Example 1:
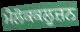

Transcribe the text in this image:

ਮੈਲੋਕਕਲੂਜ਼ਨ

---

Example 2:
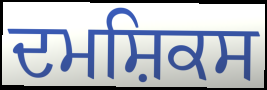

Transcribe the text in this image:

ਦਮਸ਼ਿਕਸ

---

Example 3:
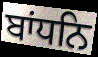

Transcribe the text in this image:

ਬਾਂਧਨਿ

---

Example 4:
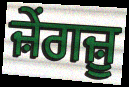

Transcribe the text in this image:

ਜ਼ੇਂਗਜ਼ੂ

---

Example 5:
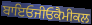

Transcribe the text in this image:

ਬਾਇਓਜੀਓਕੈਮੀਕਲ